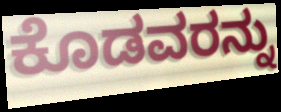
ಕೊಡವರನ್ನು